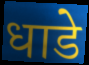
धाडे